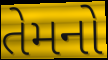
તેમનો